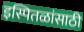
इस्पितळांसाठी